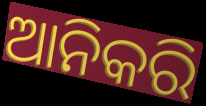
ଆନିକରି